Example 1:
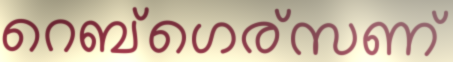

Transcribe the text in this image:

റെബ്ഗെര്സണ്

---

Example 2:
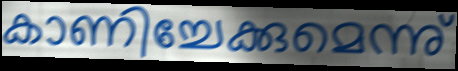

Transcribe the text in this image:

കാണിച്ചേക്കുമെന്നു്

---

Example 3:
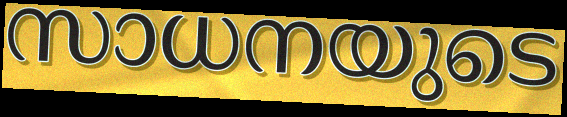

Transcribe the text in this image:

സാധനയുടെ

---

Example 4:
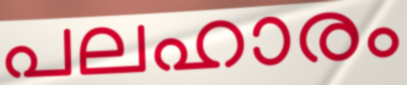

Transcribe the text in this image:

പലഹാരം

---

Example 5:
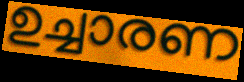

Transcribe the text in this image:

ഉച്ചാരണ